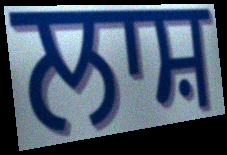
ਲਾਸ਼